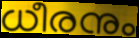
ധീരനും